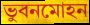
ভুবনমোহন